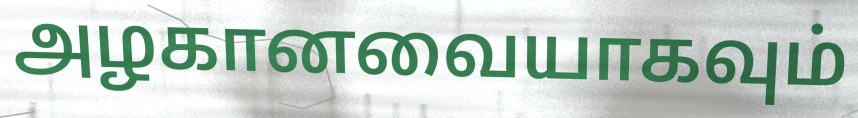
அழகானவையாகவும்